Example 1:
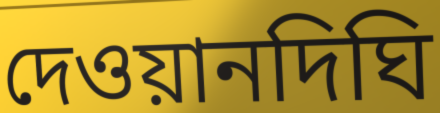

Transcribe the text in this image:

দেওয়ানদিঘি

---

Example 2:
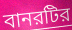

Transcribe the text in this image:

বানরটির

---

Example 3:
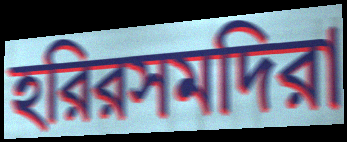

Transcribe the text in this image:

হরিরসমদিরা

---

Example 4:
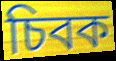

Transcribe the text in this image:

চিবক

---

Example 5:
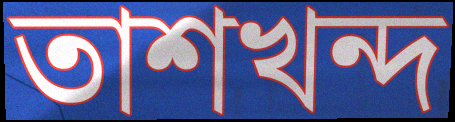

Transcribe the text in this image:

তাশখন্দ